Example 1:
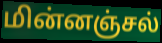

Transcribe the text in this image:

மின்னஞ்சல்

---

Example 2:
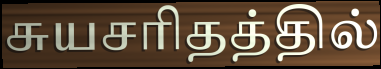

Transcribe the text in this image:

சுயசரிதத்தில்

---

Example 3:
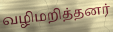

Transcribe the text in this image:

வழிமறித்தனர்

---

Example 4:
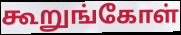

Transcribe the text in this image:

கூறுங்கோள்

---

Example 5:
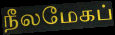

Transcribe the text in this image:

நீலமேகப்